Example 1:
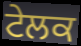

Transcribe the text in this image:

ਟੇਲਕ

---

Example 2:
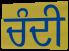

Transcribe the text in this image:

ਚੰਦੀ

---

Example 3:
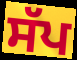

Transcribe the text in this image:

ਸੱਪ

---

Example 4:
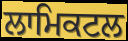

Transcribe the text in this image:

ਲਾਮਿਕਟਲ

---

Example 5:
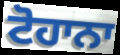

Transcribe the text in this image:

ਟੋਹਾਨਾ